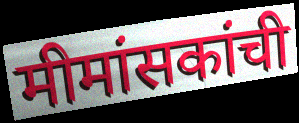
मीमांसकांची